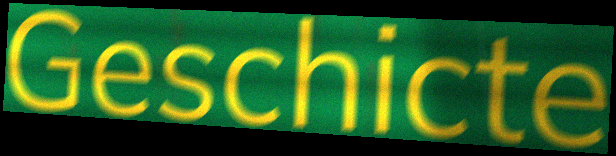
Geschicte